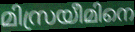
മിസ്രയീമിനെ